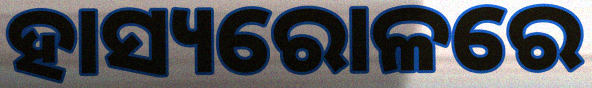
ହାସ୍ୟରୋଳରେ